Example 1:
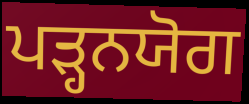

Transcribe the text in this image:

ਪੜ੍ਹਨਯੋਗ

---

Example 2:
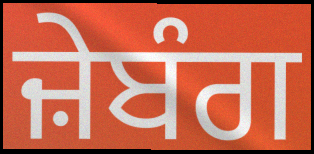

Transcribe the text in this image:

ਜ਼ੇਬੰਗ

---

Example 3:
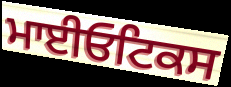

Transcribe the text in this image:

ਮਾਈਓਟਿਕਸ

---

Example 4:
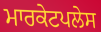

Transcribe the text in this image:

ਮਾਰਕੇਟਪਲੇਸ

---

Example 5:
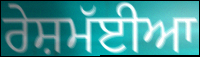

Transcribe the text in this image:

ਰੇਸ਼ਮੱਈਆ